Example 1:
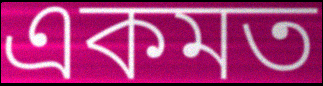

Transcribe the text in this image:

একমত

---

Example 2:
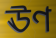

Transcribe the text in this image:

ঊণ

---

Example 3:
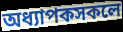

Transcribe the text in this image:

অধ্যাপকসকলে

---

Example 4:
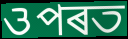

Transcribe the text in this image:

ওপৰত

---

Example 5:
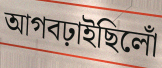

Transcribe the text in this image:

আগবঢ়াইছিলোঁ